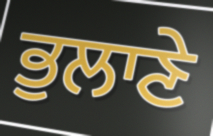
ਭੁਲਾਣੇ